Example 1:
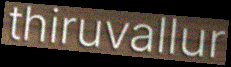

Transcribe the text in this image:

thiruvallur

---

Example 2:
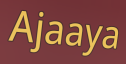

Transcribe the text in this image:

Ajaaya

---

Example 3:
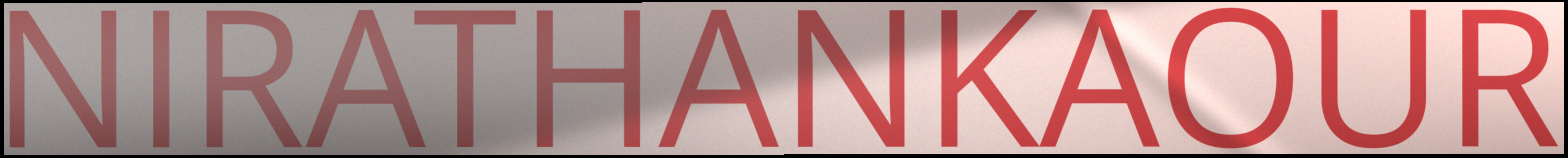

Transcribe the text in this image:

NIRATHANKAOUR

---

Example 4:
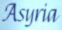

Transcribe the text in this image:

Asyria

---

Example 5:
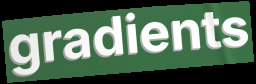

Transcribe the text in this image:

gradients